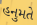
હનુમતે